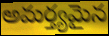
అమర్త్యమైన